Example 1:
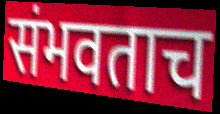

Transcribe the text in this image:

संभवताच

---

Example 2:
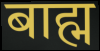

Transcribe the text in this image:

बाह्म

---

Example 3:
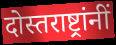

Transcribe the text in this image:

दोस्तराष्ट्रांनीं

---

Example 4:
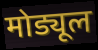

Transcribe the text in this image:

मोड्यूल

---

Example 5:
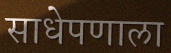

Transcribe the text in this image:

साधेपणाला